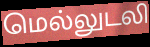
மெல்லுடலி